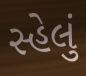
સ્હેલું